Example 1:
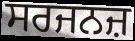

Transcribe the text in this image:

ਸਰਜਨਜ਼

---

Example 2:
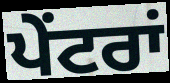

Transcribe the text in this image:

ਪੇਂਟਰਾਂ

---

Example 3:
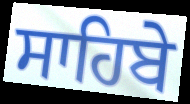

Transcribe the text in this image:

ਸਾਹਿਬੇ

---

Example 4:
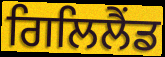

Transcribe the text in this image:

ਗਿਲਿਲੈਂਡ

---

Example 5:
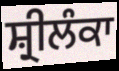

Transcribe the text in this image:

ਸ਼੍ਰੀਲੰਕਾ